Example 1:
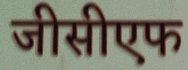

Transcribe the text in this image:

जीसीएफ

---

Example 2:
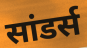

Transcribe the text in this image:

सांडर्स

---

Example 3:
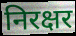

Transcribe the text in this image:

निरक्षर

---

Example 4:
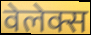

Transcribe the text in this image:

वेलेक्स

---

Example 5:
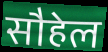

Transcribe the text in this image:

सौहेल